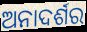
ଅନାଦର୍ଶର